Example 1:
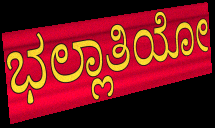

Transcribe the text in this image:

ಭಲ್ಲಾತಿಯೋ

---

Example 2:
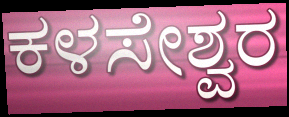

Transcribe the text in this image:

ಕಳಸೇಶ್ವರ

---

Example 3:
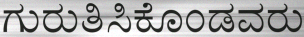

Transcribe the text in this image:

ಗುರುತಿಸಿಕೊಂಡವರು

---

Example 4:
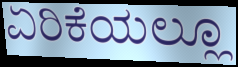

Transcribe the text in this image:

ಏರಿಕೆಯಲ್ಲೂ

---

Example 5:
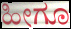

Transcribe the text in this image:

ಹೀಗೂ